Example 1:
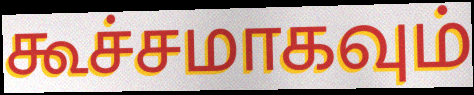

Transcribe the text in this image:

கூச்சமாகவும்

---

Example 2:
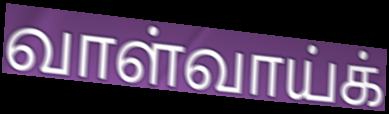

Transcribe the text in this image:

வாள்வாய்க்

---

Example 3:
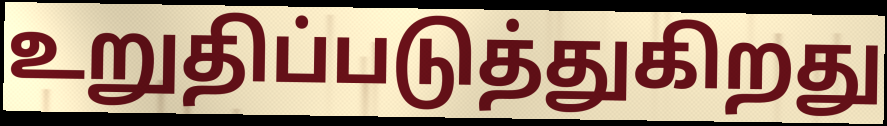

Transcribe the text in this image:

உறுதிப்படுத்துகிறது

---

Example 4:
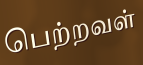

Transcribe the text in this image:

பெற்றவள்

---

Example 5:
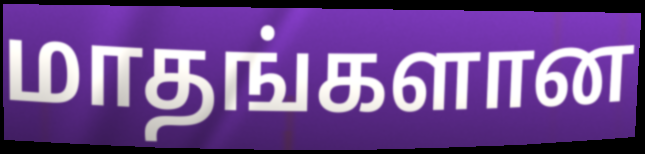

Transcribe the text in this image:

மாதங்களான